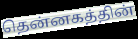
தென்னகத்தின்